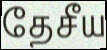
தேசீய